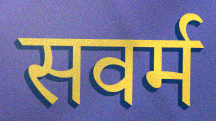
सवर्म